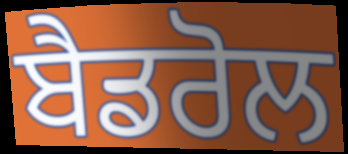
ਬੈਡਰੋਲ